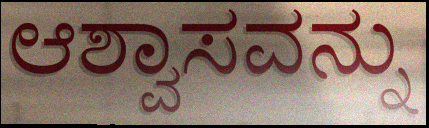
ಆಶ್ವಾಸವನ್ನು